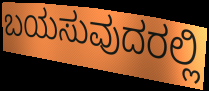
ಬಯಸುವುದರಲ್ಲಿ